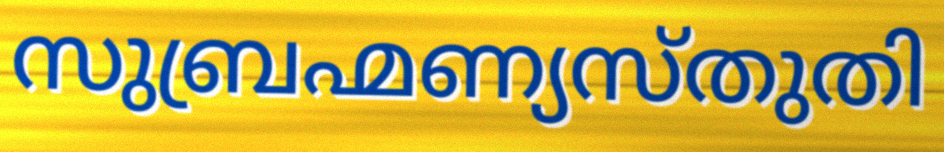
സുബ്രഹ്മണ്യസ്തുതി